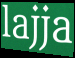
lajja